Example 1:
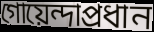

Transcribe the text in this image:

গোয়েন্দাপ্রধান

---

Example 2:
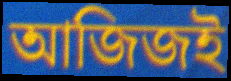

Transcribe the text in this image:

আজিজই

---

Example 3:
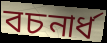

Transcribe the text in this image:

বচনার্ধ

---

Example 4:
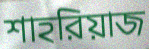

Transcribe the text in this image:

শাহরিয়াজ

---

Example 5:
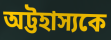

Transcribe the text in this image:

অট্টহাস্যকে